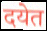
दयेत